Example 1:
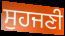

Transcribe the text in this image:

ਸੁਹਜਣੀ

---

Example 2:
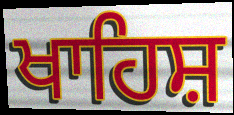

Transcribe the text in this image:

ਖਾਹਿਸ਼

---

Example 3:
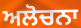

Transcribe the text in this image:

ਅਲੋਚਨਾ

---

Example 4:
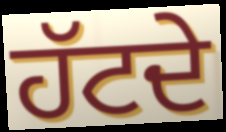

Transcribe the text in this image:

ਹੱਟਦੇ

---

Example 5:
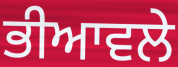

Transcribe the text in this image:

ਭੀਆਵਲੇ